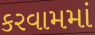
કરવામમાં